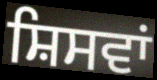
ਸ਼ਿਸਵਾਂ